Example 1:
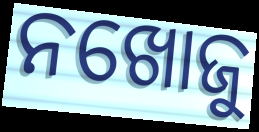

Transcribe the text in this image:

ନଖୋଜୁ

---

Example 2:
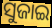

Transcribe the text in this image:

ସୁଜାଇ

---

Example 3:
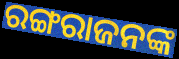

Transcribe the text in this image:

ରଙ୍ଗରାଜନଙ୍କ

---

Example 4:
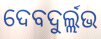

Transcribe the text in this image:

ଦେବଦୁର୍ଲ୍ଲଭ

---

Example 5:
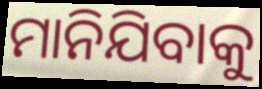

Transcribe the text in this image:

ମାନିଯିବାକୁ